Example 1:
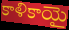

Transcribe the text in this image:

కాళికాయై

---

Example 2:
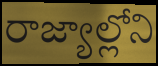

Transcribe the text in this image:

రాజ్యాల్లోని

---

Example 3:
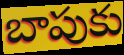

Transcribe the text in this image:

బాపుకు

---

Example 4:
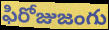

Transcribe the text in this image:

ఫిరోజుజంగు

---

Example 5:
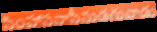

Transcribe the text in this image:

సింహాసనాసీనుడగువాడు